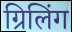
ग्रिलिंग